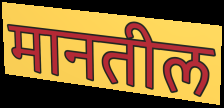
मानतील